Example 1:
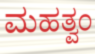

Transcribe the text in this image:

ಮಹತ್ವಂ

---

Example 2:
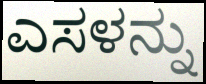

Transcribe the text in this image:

ಎಸಳನ್ನು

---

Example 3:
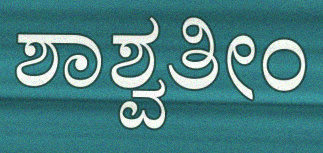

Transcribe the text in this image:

ಶಾಶ್ವತೀಂ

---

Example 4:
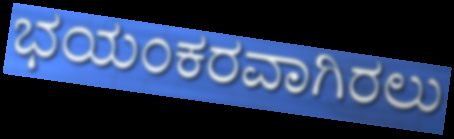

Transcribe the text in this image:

ಭಯಂಕರವಾಗಿರಲು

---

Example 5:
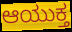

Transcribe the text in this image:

ಆಯುಕ್ತ